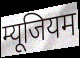
म्यूजियम